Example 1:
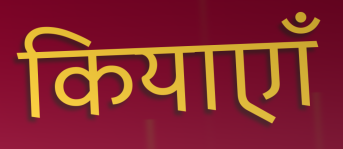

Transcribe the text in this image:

कियाएाँ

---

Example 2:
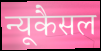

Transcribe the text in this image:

न्यूकैसल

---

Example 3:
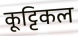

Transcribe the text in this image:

कूट्टिकल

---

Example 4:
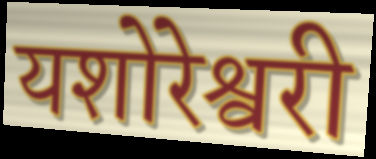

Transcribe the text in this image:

यशोरेश्वरी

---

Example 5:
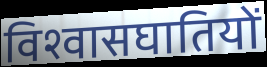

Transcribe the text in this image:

विश्वासघातियों